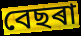
বেছৰা